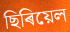
ছিৰিয়েল